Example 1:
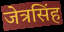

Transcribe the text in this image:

जेत्रसिंह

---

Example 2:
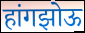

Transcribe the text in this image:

हांगझोऊ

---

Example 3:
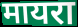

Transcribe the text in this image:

मायरा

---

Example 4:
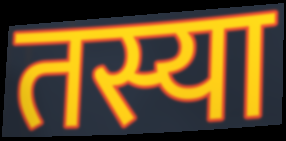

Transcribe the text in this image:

तस्या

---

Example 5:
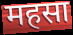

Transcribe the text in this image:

महसा